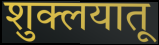
शुक्लयातू